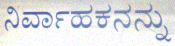
ನಿರ್ವಾಹಕನನ್ನು